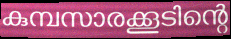
കുമ്പസാരക്കൂടിന്റെ